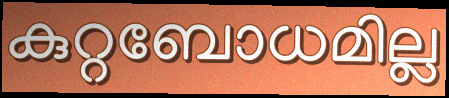
കുറ്റബോധമില്ല